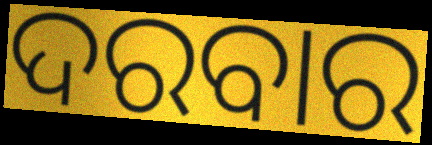
ଦରବାର